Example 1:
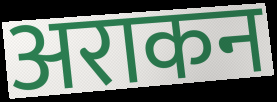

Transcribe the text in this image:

अराकन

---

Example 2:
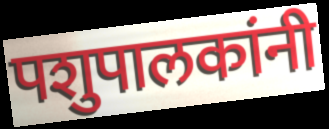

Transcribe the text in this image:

पशुपालकांनी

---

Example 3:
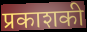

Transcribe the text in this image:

प्रकाशकी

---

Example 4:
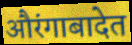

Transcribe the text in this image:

औरंगाबादेत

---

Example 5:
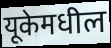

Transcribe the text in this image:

यूकेमधील